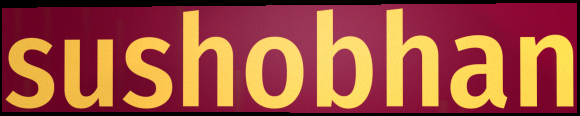
sushobhan